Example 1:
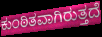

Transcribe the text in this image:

ಕುಂಠಿತವಾಗಿರುತ್ತದೆ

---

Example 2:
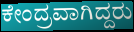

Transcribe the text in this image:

ಕೇಂದ್ರವಾಗಿದ್ದರು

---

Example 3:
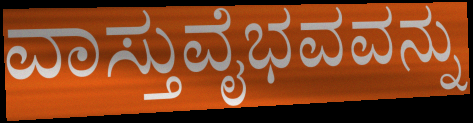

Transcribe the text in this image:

ವಾಸ್ತುವೈಭವವನ್ನು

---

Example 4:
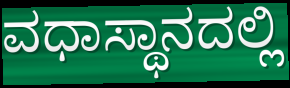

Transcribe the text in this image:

ವಧಾಸ್ಥಾನದಲ್ಲಿ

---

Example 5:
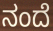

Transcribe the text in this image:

ನಂದೆ